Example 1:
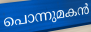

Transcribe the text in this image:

പൊന്നുമകൻ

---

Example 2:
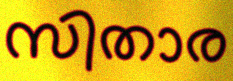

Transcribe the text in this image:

സിതാര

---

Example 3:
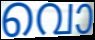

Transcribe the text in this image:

വൊ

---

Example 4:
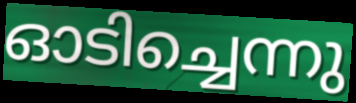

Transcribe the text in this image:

ഓടിച്ചെന്നു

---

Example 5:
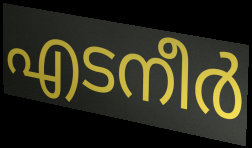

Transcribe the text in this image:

എടനീർ